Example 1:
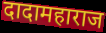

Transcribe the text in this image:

दादामहाराज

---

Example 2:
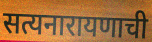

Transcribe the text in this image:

सत्यनारायणाची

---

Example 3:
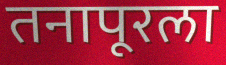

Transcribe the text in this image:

तनापूरला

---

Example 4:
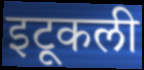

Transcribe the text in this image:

इटूकली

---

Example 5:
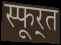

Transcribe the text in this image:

स्फूर्त